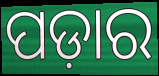
ପଡ଼ାର